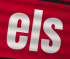
els